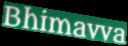
Bhimavva